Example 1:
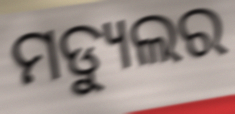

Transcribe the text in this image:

ମଡ୍ୟୁଲର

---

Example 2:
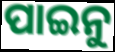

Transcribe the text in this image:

ପାଇନୁ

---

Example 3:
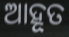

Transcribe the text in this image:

ଆହୂତ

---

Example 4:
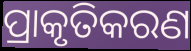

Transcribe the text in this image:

ପ୍ରାକୃତିକରଣ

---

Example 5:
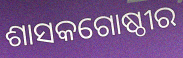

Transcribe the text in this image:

ଶାସକଗୋଷ୍ଠୀର